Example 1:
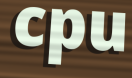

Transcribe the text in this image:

cpu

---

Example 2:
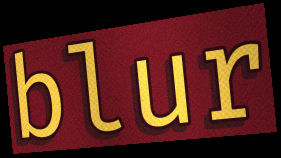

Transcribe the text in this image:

blur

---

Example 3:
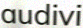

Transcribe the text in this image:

audivi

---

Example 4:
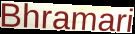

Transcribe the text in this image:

Bhramari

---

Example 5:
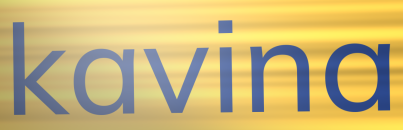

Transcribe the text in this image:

kavina